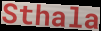
Sthala